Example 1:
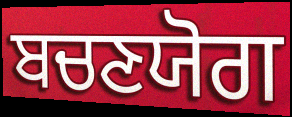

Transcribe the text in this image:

ਬਚਣਯੋਗ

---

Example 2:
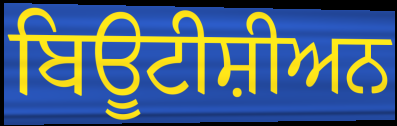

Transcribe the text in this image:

ਬਿਊਟੀਸ਼ੀਅਨ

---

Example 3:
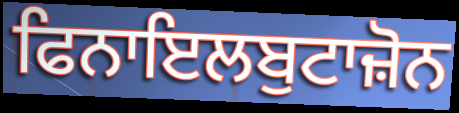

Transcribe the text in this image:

ਫਿਨਾਇਲਬੁਟਾਜ਼ੋਨ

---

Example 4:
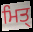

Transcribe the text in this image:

ਮਿਤ੍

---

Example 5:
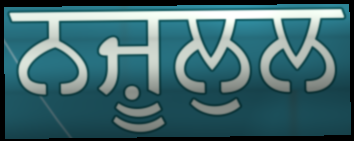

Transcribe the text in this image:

ਨਜ਼ੂਲੁਲ